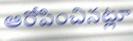
ఆరోపించినట్లూ